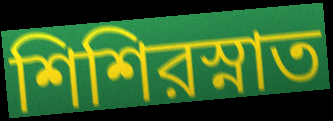
শিশিরস্নাত